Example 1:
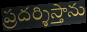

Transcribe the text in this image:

ప్రదర్శిస్తాను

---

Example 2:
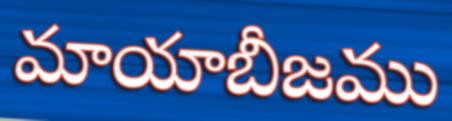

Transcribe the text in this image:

మాయాబీజము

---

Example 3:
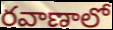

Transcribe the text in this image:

రవాణాలో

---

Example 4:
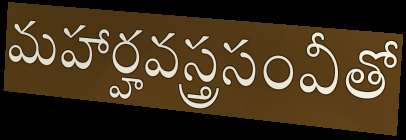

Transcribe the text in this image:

మహార్హవస్త్రసంవీతో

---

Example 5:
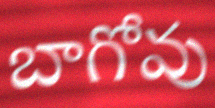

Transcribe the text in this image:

బాగోవు